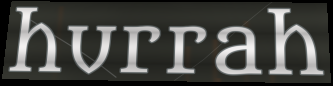
hurrah